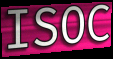
ISOC